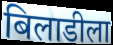
बिलाडीला